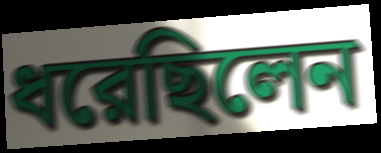
ধরেছিলেন